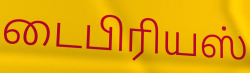
டைபிரியஸ்